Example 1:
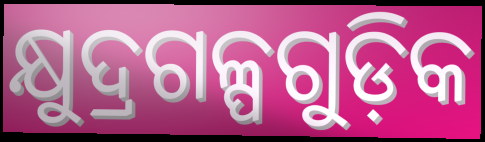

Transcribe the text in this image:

କ୍ଷୁଦ୍ରଗଳ୍ପଗୁଡ଼ିକ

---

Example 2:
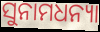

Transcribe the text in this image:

ସୁନାମଧନ୍ୟା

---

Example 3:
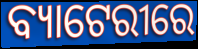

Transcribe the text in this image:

ବ୍ୟାଟେରୀରେ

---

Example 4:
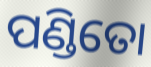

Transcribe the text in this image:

ପଣ୍ଡିତୋ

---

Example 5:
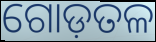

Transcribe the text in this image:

ଗୋଡ଼ତଳ